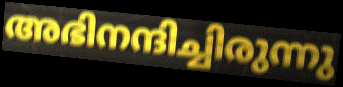
അഭിനന്ദിച്ചിരുന്നു